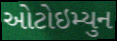
ઓટોઇમ્યુન